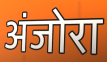
अंजोरा